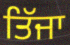
ਤਿੱਜਾ